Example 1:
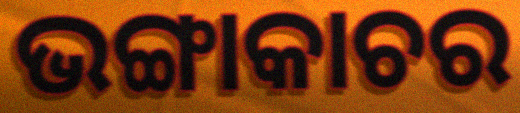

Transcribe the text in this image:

ଭଙ୍ଗାକାଚର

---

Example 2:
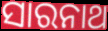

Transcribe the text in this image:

ସାରନାଥ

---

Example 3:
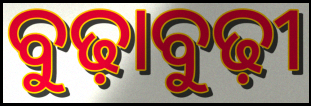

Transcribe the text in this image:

ବୁଢ଼ାବୁଢ଼ୀ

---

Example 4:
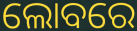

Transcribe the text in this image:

ଲୋବରେ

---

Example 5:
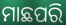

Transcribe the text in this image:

ମାଛପରି